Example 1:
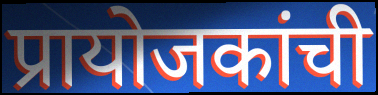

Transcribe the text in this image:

प्रायोजकांची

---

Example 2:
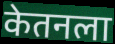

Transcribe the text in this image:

केतनला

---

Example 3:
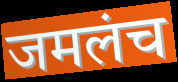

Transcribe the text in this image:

जमलंच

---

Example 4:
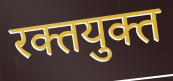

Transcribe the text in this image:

रक्तयुक्त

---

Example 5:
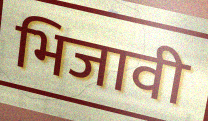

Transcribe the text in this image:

भिजावी